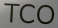
TCO